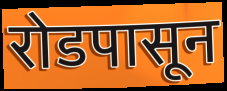
रोडपासून